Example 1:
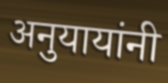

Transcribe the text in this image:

अनुयायांनी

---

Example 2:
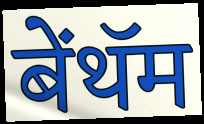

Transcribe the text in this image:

बेंथॅम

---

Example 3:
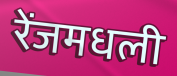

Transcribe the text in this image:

रेंजमधली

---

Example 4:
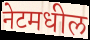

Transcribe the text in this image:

नेटमधील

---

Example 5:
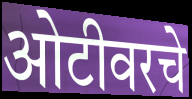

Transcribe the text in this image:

ओटीवरचे